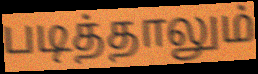
படித்தாலும்